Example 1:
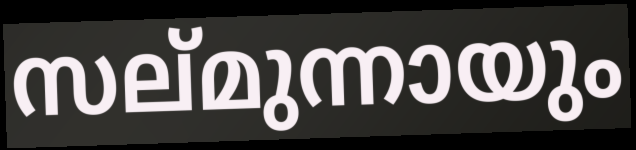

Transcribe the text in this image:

സല്മുന്നായും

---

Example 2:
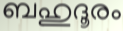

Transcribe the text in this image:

ബഹുദൂരം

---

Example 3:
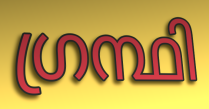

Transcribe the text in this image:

ഗ്രന്ഥി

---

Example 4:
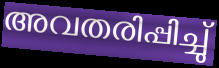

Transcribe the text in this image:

അവതരിപ്പിച്ചു്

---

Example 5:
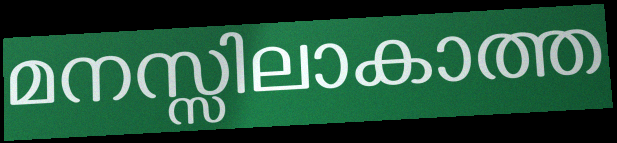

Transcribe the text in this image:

മനസ്സിലാകാത്ത